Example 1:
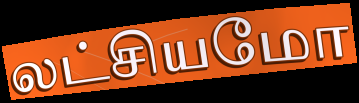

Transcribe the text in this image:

லட்சியமோ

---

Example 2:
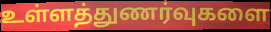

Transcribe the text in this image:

உள்ளத்துணர்வுகளை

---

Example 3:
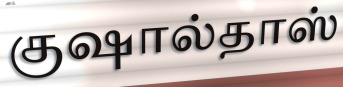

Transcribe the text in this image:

குஷால்தாஸ்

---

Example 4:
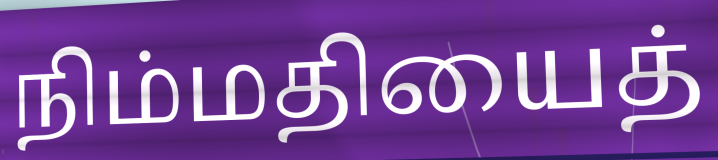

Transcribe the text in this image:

நிம்மதியைத்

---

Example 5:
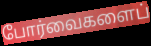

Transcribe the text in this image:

போர்வைகளைப்